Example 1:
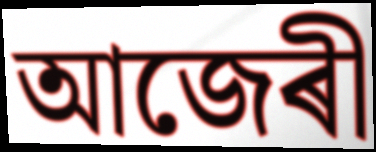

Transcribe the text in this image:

আজেৰী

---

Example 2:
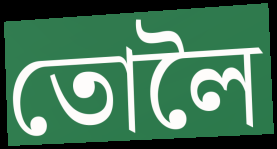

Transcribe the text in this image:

তোলৈ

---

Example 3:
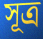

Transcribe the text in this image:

সূত্ৰ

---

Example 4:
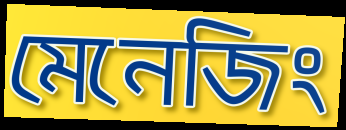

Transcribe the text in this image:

মেনেজিং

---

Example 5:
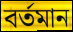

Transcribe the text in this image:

বৰ্তমান